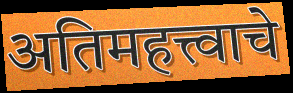
अतिमहत्त्वाचे